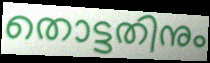
തൊട്ടതിനും